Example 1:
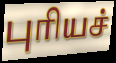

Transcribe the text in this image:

புரியச்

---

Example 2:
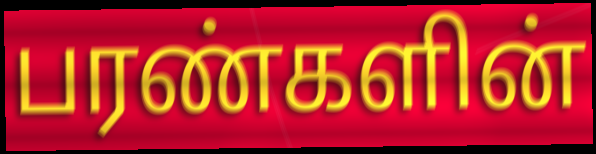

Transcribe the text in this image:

பரண்களின்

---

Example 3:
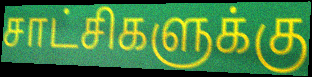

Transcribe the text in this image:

சாட்சிகளுக்கு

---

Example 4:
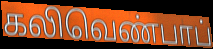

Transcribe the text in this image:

கலிவெண்பாப்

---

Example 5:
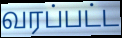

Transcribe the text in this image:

வரப்பட்ட